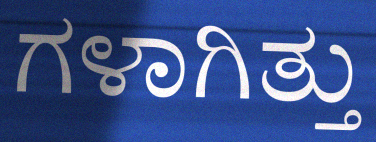
ಗಳಾಗಿತ್ತು